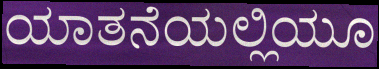
ಯಾತನೆಯಲ್ಲಿಯೂ